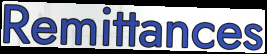
Remittances